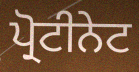
ਪ੍ਰੋਟੀਨੇਟ